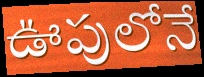
ఊపులోనే